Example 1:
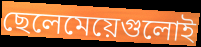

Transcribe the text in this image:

ছেলেমেয়েগুলোই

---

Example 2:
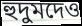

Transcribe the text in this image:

হুদুমদেও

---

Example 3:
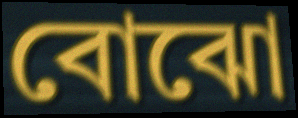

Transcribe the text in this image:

বোঝো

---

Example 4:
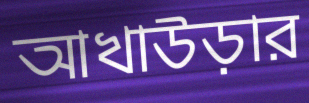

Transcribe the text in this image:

আখাউড়ার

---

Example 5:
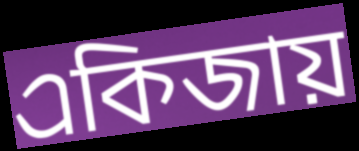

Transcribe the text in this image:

একিজায়